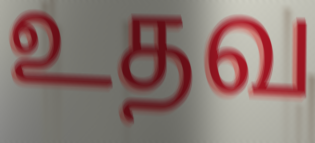
உதவ